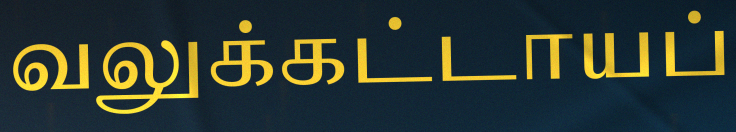
வலுக்கட்டாயப்